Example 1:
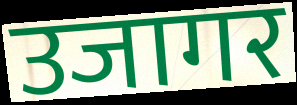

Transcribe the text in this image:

उजागर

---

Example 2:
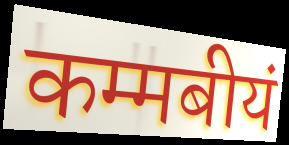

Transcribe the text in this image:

कम्मबीयं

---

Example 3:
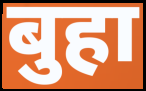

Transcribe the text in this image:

बुहा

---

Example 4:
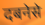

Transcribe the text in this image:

दबनेसे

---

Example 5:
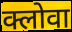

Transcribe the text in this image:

क्लोवा